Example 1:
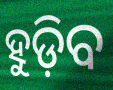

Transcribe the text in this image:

ହୁଡ଼ିବ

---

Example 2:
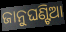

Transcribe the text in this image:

ଜାନୁଘଣ୍ଟିଆ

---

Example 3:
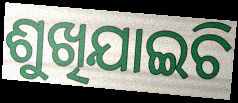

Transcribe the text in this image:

ଶୁଖିଯାଇଚି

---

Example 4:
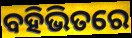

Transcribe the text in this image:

ବହିଭିତରେ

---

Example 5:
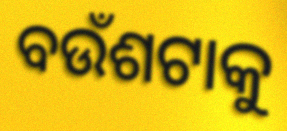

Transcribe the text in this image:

ବଉଁଶଟାକୁ